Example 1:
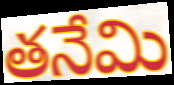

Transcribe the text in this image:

తనేమి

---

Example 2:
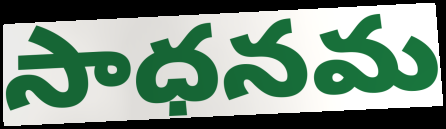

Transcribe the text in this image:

సాధనమ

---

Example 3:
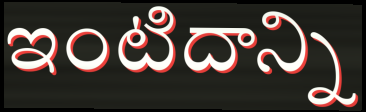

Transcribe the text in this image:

ఇంటిదాన్ని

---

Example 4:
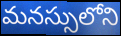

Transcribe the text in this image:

మనస్సులోని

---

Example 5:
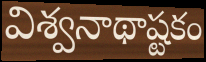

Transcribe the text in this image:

విశ్వనాథాష్టకం